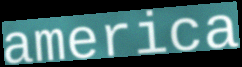
america